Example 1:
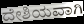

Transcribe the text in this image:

ದೇಶಿಯವಾಗಿ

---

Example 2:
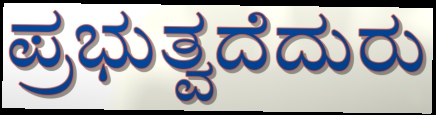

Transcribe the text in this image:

ಪ್ರಭುತ್ವದೆದುರು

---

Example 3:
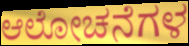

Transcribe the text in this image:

ಆಲೋಚನೆಗಳ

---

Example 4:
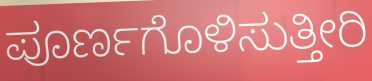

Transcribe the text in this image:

ಪೂರ್ಣಗೊಳಿಸುತ್ತೀರಿ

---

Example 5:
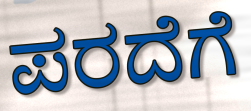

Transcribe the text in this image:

ಪರದೆಗೆ